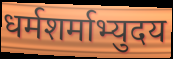
धर्मशर्माभ्युदय